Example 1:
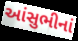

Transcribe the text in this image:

આંસુભીનાં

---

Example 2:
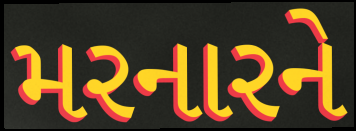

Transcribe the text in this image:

મરનારને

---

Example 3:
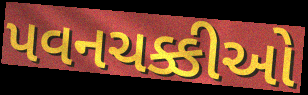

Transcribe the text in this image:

પવનચક્કીઓ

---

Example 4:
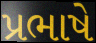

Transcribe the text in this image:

પ્રભાષે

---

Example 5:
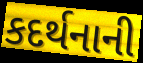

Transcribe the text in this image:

કદર્થનાની